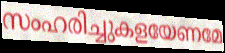
സംഹരിച്ചുകളയേണമേ